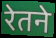
रेतने